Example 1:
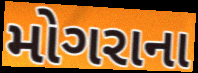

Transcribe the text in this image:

મોગરાના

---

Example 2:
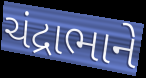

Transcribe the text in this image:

ચંદ્રાભાને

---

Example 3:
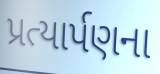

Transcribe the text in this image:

પ્રત્યાર્પણના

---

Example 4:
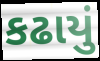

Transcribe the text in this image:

કઢાયું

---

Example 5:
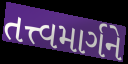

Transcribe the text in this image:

તત્ત્વમાર્ગને